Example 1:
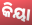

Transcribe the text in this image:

କିୟା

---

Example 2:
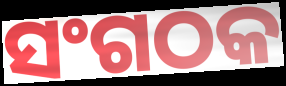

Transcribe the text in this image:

ସଂଗଠକ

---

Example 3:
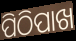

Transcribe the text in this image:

ପିଠିପାଖ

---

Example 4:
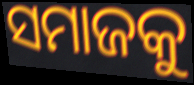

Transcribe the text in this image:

ସମାଜକୁ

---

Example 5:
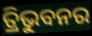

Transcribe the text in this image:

ତ୍ରିଭୁବନର